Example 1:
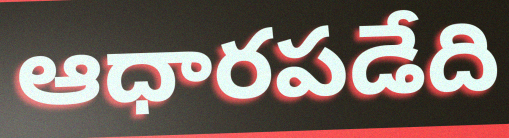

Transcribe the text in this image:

ఆధారపడేది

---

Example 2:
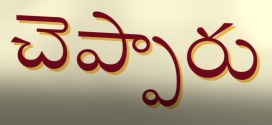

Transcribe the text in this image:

చెప్పారు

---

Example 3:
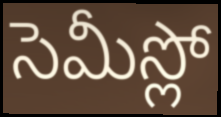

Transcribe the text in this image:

సెమీస్లో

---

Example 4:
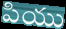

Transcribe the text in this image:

పియు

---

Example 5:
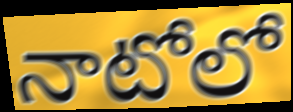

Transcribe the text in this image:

నాటోలో